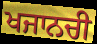
ਖਜਾਨਚੀ